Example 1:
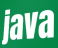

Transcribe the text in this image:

java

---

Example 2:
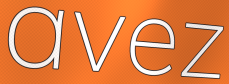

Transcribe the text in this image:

avez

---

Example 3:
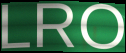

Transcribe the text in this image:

LRO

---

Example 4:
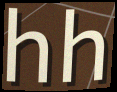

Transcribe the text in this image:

hh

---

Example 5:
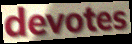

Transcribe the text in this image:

devotes